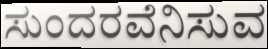
ಸುಂದರವೆನಿಸುವ